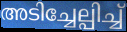
അടിച്ചേല്പിച്ച്